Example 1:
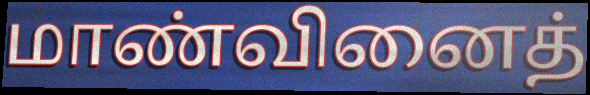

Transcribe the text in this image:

மாண்வினைத்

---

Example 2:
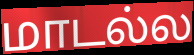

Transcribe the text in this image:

மாடல்ல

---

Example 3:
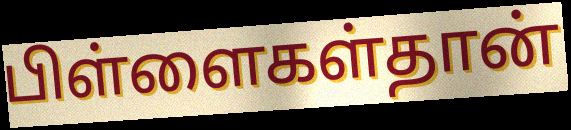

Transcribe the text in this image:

பிள்ளைகள்தான்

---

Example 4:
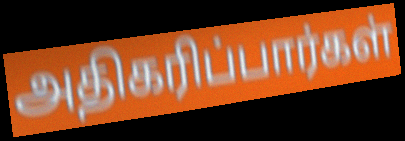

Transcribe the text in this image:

அதிகரிப்பார்கள்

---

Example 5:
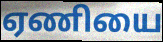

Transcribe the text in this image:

ஏணியை